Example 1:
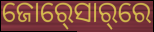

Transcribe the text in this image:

ଜୋର୍‍ସୋର୍‌ରେ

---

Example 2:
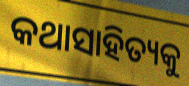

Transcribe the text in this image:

କଥାସାହିତ୍ୟକୁ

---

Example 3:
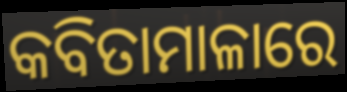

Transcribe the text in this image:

କବିତାମାଳାରେ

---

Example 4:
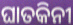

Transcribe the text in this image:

ଘାତକିନୀ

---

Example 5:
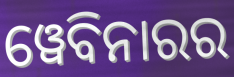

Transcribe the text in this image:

ୱେବିନାରର